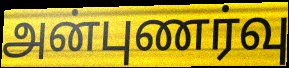
அன்புணர்வு